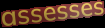
assesses